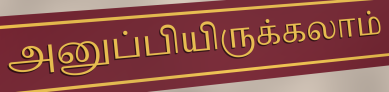
அனுப்பியிருக்கலாம்